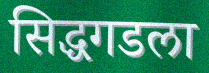
सिद्धगडला